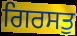
ਗਿਰਸਤੁ